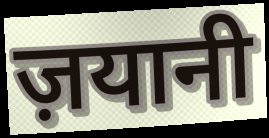
ज़यानी